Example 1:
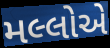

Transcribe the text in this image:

મલ્લોએ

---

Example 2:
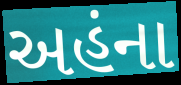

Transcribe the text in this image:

અહંના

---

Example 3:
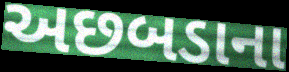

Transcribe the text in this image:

અછબડાના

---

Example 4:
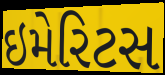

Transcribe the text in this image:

ઇમેરિટસ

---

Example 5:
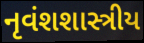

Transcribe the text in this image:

નૃવંશશાસ્ત્રીય